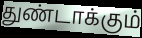
துண்டாக்கும்